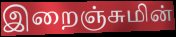
இறைஞ்சுமின்